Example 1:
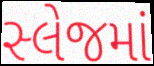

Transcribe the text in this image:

સ્લેજમાં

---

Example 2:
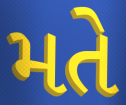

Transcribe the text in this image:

મતે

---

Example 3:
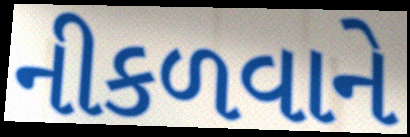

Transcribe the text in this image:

નીકળવાને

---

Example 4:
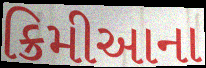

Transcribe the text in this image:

ક્રિમીઆના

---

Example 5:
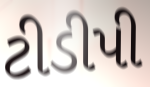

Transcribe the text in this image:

ટીડીપી